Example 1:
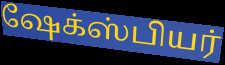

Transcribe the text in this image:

ஷேக்ஸ்பியர்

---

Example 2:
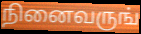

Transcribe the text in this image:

நினைவருங்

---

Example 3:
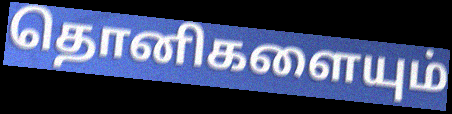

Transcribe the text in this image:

தொனிகளையும்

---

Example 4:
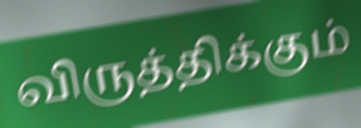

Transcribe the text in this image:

விருத்திக்கும்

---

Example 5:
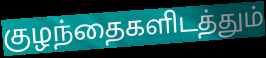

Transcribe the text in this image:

குழந்தைகளிடத்தும்